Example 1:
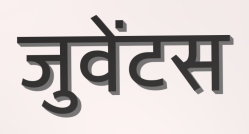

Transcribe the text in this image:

जुवेंटस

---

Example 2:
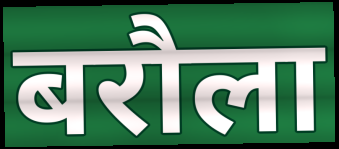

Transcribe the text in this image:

बरौला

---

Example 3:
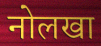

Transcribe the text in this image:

नोलखा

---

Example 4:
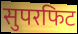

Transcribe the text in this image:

सुपरफिट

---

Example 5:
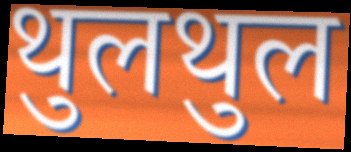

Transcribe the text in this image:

थुलथुल